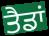
ਤੈਡਾਂ